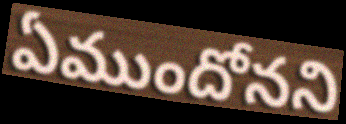
ఏముందోనని